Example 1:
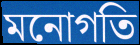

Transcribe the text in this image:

মনোগতি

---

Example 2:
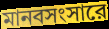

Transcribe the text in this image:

মানবসংসারে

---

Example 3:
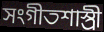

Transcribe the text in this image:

সংগীতশাস্ত্রী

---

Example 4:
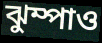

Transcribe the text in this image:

ঝুম্পাও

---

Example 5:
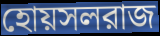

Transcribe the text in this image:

হোয়সলরাজ